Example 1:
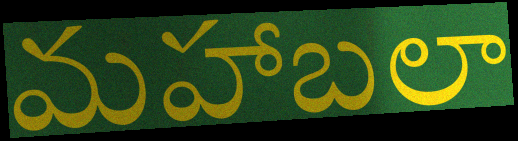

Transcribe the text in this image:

మహాబలా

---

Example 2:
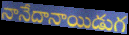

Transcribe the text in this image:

నానేదానాయిడుగ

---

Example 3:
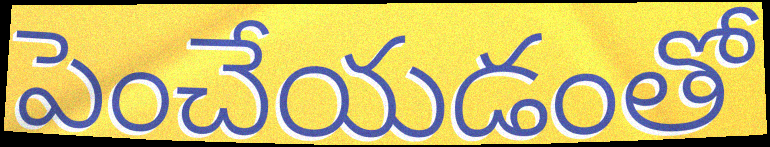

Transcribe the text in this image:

పెంచేయడంతో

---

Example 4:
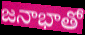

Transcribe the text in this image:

జనాభాతో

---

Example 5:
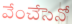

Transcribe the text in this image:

వేంచేసెనో